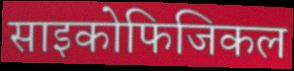
साइकोफिजिकल